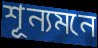
শূন্যমনে